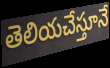
తెలియచేస్తూనే